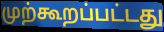
முற்கூறப்பட்டது